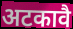
अटकावै